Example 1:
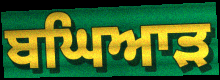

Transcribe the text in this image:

ਬਘਿਆੜ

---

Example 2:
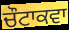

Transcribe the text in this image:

ਚੌਟਾਕਵਾ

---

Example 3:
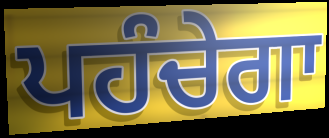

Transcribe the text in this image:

ਪਹੰਚੇਗਾ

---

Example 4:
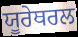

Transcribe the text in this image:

ਯੂਰੇਥਰਲ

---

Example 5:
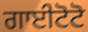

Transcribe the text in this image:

ਗਾਈਟੋਟੋ